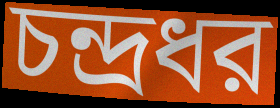
চন্দ্রধর